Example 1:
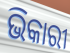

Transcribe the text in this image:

ଭିକାରୀ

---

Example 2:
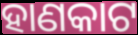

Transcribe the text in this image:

ହାଣକାଟ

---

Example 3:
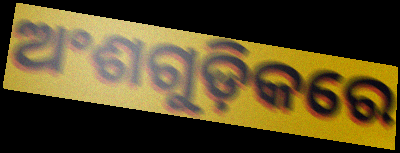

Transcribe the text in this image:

ଅଂଶଗୁଡ଼ିକରେ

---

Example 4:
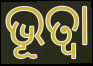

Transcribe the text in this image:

ଭୂତ୍ୱା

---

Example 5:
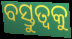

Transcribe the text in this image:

ବସ୍ତୁତ୍ଵକୁ